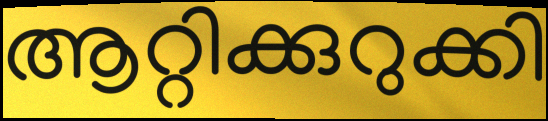
ആറ്റിക്കുറുക്കി